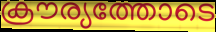
ക്രൗര്യത്തോടെ